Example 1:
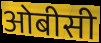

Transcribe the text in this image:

ओबीसी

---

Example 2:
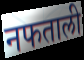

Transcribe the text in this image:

नफताली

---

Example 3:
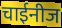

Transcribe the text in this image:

चाईनीज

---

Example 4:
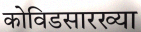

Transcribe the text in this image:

कोविडसारख्या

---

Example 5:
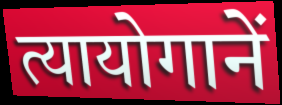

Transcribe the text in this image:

त्यायोगानें